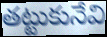
తట్టుకునేవి